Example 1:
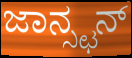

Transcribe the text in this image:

ಜಾನ್ಸ್ಟನ್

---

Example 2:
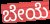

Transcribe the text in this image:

ಬೇಯೆ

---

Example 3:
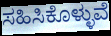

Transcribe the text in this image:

ಸಹಿಸಿಕೊಳ್ಳುವೆ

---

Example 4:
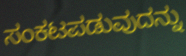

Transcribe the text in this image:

ಸಂಕಟಪಡುವುದನ್ನು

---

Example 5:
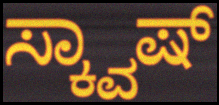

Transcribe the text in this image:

ಸ್ಕ್ವಾಷ್